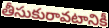
తీసుకురావటానికీ